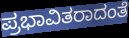
ಪ್ರಭಾವಿತರಾದಂತೆ